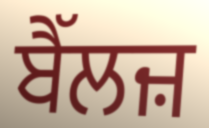
ਬੈੱਲਜ਼